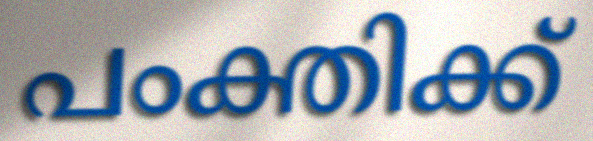
പംക്തിക്ക്